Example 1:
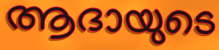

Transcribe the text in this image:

ആദായുടെ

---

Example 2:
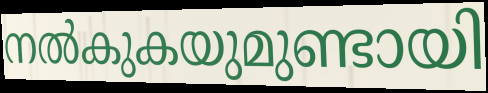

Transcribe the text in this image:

നൽകുകയുമുണ്ടായി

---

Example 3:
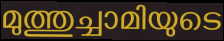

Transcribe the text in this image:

മുത്തുച്ചാമിയുടെ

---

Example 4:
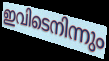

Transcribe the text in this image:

ഇവിടെനിന്നും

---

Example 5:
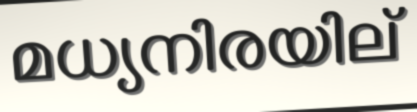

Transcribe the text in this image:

മധ്യനിരയില്